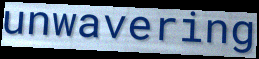
unwavering